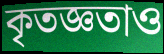
কৃতজ্ঞতাও